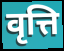
वृत्ति